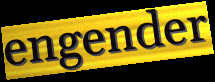
engender